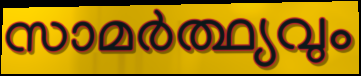
സാമർത്ഥ്യവും